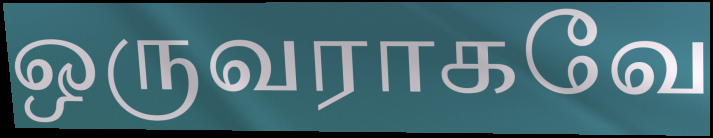
ஒருவராகவே